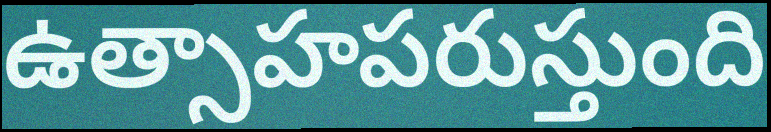
ఉత్సాహపరుస్తుంది